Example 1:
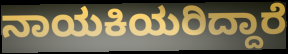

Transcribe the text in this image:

ನಾಯಕಿಯರಿದ್ದಾರೆ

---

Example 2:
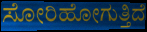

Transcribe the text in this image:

ಸೋರಿಹೋಗುತ್ತಿದೆ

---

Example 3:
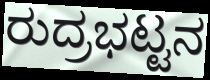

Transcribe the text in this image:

ರುದ್ರಭಟ್ಟನ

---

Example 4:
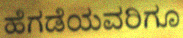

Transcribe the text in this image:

ಹೆಗಡೆಯವರಿಗೂ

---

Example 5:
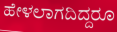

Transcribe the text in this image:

ಹೇಳಲಾಗದಿದ್ದರೂ